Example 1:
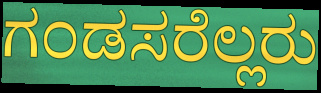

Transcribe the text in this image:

ಗಂಡಸರೆಲ್ಲರು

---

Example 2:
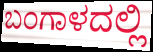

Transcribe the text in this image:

ಬಂಗಾಳದಲ್ಲಿ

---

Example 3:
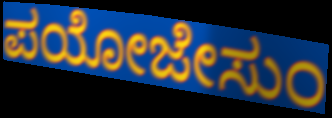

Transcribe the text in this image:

ಪಯೋಜೇಸುಂ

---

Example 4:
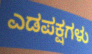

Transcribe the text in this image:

ಎಡಪಕ್ಷಗಳು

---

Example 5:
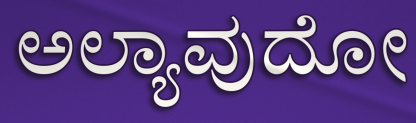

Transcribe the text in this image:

ಅಲ್ಯಾವುದೋ